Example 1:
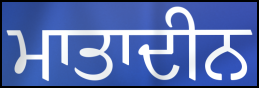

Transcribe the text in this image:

ਮਾਤਾਦੀਨ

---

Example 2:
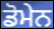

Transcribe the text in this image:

ਡੋਮੇਨ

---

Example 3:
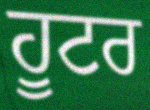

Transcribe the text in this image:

ਹੂਟਰ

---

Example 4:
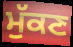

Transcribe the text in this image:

ਮੁੱਕਣ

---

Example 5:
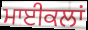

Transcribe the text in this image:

ਮਾਈਕਲਾਂ